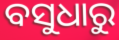
ବସୁଧାରୁ